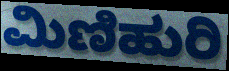
ಮಿಣಿಹುರಿ